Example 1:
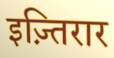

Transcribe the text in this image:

इज़्तिरार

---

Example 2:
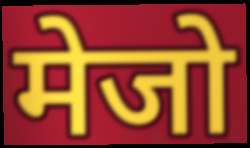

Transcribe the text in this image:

मेजो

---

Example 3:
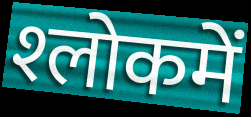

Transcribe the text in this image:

श्‍लोकमें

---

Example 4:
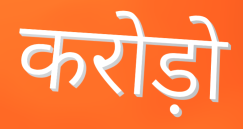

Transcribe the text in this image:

करोड़ो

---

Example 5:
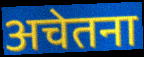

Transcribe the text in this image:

अचेतना